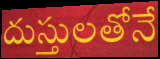
దుస్తులతోనే